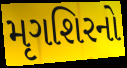
મૃગશિરનો